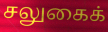
சலுகைக்